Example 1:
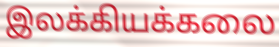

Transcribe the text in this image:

இலக்கியக்கலை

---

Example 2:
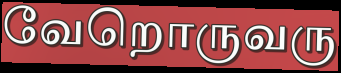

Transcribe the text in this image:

வேறொருவரு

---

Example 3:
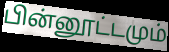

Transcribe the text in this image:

பின்னூட்டமும்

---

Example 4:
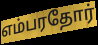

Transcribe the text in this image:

எம்பரதோர்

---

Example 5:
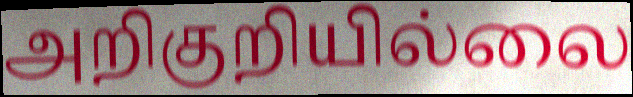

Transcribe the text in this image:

அறிகுறியில்லை